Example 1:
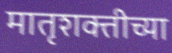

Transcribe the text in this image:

मातृशक्तीच्या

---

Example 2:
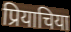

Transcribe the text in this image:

प्रियाचिया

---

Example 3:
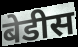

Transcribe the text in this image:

बेडीस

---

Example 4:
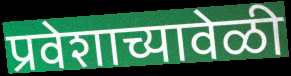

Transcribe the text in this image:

प्रवेशाच्यावेळी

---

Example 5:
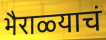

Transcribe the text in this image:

भैराळ्याचं